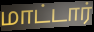
மாட்டார்